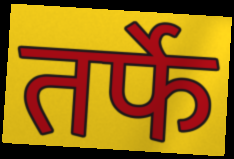
तर्फे